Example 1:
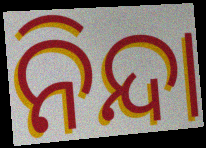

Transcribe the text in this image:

ନିନ୍ଦା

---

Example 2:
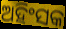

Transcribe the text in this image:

ଅହିଂସକ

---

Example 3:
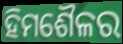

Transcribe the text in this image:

ହିମଶୈଳର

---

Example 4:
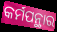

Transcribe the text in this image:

କର୍ମପନ୍ଥାର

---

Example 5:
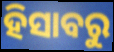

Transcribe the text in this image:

ହିସାବରୁ